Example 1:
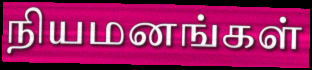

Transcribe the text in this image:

நியமனங்கள்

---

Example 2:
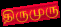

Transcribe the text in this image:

திருமுரு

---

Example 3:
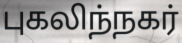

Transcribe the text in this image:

புகலிந்நகர்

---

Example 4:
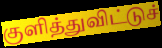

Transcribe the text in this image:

குளித்துவிட்டுச்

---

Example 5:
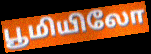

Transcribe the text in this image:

பூமியிலோ